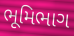
ભૂમિભાગ